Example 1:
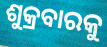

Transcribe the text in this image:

ଶୁକ୍ରବାରକୁ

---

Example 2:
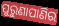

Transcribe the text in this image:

ପୁରୁଣାପାଣିର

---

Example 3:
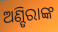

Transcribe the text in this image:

ଅଣ୍ଡିରାଙ୍କ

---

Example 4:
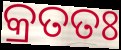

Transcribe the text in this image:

କ୍ରତତଃ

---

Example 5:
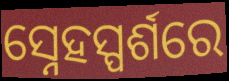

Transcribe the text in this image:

ସ୍ନେହସ୍ପର୍ଶରେ